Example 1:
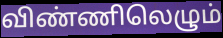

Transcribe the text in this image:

விண்ணிலெழும்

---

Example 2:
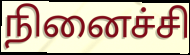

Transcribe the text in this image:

நினைச்சி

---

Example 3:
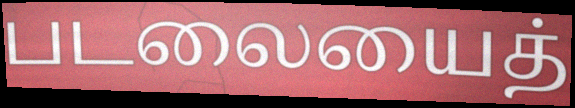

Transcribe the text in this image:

படலையைத்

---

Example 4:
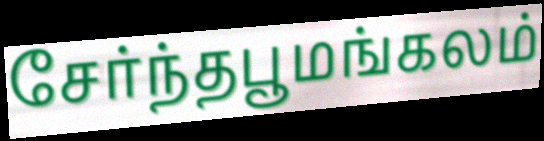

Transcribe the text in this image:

சேர்ந்தபூமங்கலம்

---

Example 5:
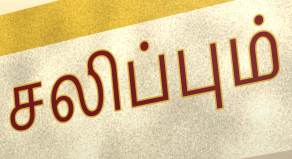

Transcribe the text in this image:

சலிப்பும்